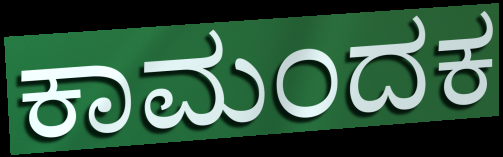
ಕಾಮಂದಕ